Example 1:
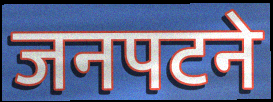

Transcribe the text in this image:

जनपटने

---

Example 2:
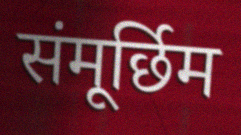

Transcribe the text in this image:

संमूर्छिम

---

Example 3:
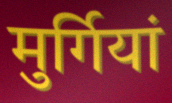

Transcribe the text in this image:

मुर्गियां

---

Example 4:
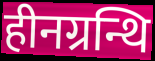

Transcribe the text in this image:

हीनग्रन्थि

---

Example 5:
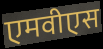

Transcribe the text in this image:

एमवीएस